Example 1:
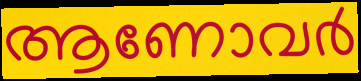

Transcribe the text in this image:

ആണോവർ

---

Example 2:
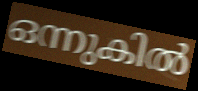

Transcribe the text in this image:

ഒന്നുകിൽ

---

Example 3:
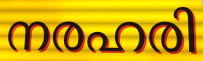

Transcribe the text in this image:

നരഹരി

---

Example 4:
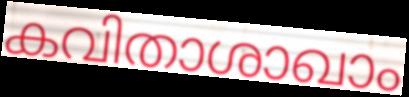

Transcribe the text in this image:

കവിതാശാഖാം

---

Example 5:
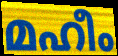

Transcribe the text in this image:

മഹീം